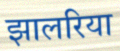
झालरिया